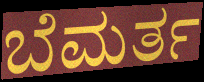
ಬೆಮರ್ತ